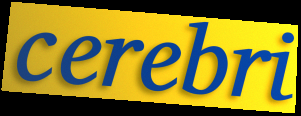
cerebri